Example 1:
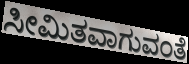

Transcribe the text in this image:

ಸೀಮಿತವಾಗುವಂತೆ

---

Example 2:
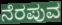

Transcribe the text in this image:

ನೆರಪುವ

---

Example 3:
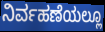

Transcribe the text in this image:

ನಿರ್ವಹಣೆಯಲ್ಲೂ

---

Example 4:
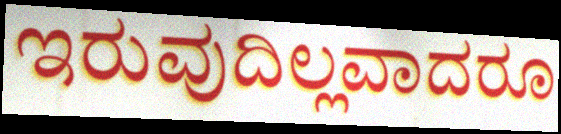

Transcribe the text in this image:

ಇರುವುದಿಲ್ಲವಾದರೂ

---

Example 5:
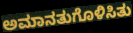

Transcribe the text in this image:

ಅಮಾನತುಗೊಳಿಸಿತು